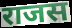
राजस